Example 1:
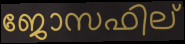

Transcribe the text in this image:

ജോസഫില്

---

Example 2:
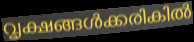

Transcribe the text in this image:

വൃക്ഷങ്ങൾക്കരികിൽ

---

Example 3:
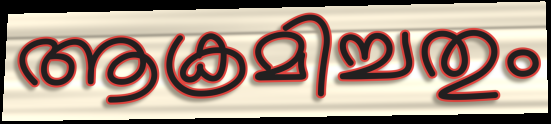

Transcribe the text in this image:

ആക്രമിച്ചതും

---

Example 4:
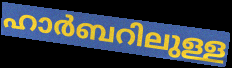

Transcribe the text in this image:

ഹാർബറിലുള്ള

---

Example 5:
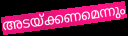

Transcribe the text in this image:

അടയ്ക്കണമെന്നും